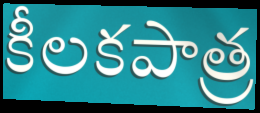
కీలకపాత్ర